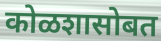
कोळशासोबत